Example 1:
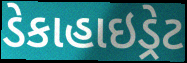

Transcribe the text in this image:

ડેકાહાઇડ્રેટ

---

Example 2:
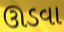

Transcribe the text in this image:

ઊડવા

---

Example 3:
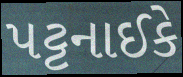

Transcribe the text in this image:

પટ્ટનાઈકે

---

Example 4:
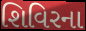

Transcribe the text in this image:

શિવિરના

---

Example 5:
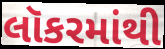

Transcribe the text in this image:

લૉકરમાંથી